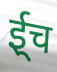
ई्च